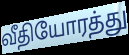
வீதியோரத்து